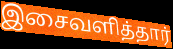
இசைவளித்தார்